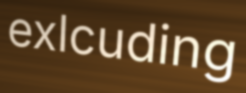
exlcuding